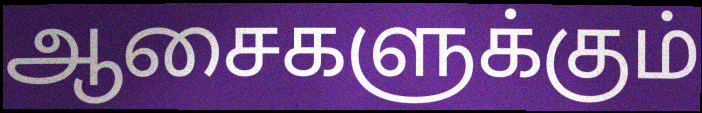
ஆசைகளுக்கும்